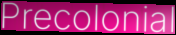
Precolonial